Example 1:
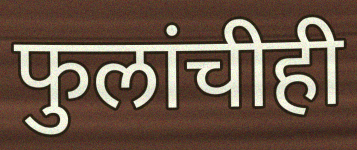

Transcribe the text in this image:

फुलांचीही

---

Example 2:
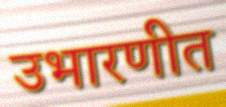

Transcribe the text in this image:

उभारणीत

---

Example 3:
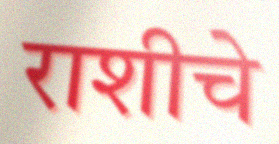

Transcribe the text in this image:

राशीचे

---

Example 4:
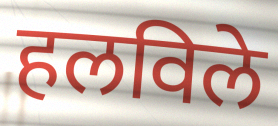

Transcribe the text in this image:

हलविले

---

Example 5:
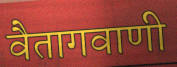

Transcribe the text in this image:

वैतागवाणी